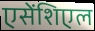
एसेंशिएल